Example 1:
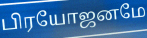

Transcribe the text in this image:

பிரயோஜனமே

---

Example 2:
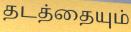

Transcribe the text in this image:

தடத்தையும்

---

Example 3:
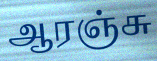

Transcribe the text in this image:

ஆரஞ்சு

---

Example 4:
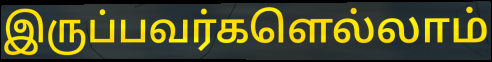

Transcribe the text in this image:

இருப்பவர்களெல்லாம்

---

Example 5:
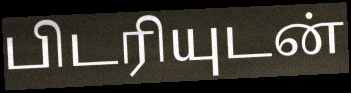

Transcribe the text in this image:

பிடரியுடன்